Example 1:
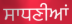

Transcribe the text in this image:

ਸਾਧਣੀਆਂ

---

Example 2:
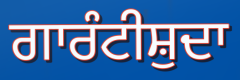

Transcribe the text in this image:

ਗਾਰੰਟੀਸ਼ੁਦਾ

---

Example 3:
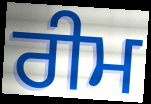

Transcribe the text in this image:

ਰੀਮ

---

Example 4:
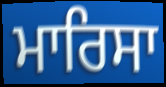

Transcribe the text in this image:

ਮਾਰਿਸਾ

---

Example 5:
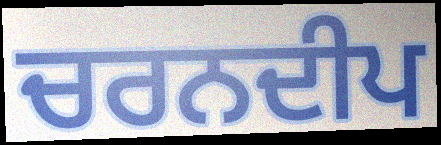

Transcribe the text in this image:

ਚਰਨਦੀਪ